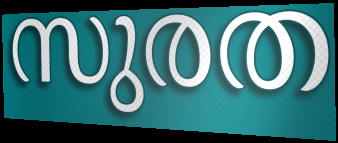
സുരത